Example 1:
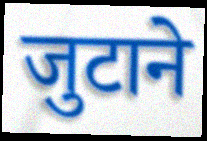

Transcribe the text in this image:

जुटाने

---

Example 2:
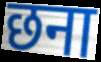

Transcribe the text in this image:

छना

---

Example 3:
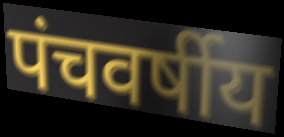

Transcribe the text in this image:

पंचवर्षीय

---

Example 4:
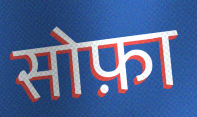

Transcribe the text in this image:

सोफ़ा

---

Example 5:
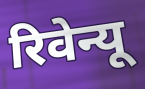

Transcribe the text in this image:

रिवेन्यू